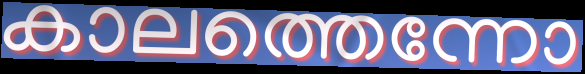
കാലത്തെന്നോ